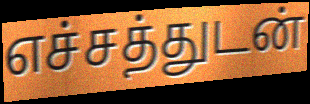
எச்சத்துடன்